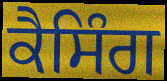
ਕੈਸਿੰਗ